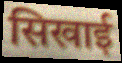
सिखाई